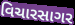
વિચારસાગર